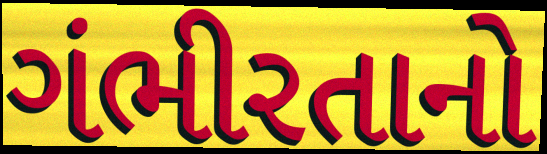
ગંભીરતાનો